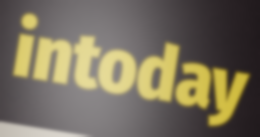
intoday